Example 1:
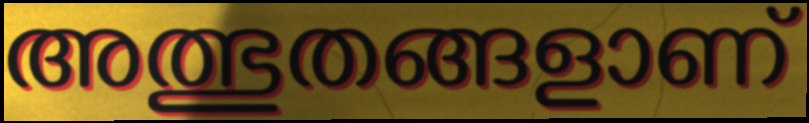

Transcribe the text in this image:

അത്ഭുതങ്ങളാണ്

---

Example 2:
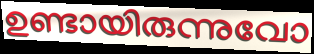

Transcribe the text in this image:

ഉണ്ടായിരുന്നുവോ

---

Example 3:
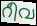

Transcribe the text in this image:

റീവ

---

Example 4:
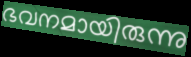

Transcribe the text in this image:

ഭവനമായിരുന്നു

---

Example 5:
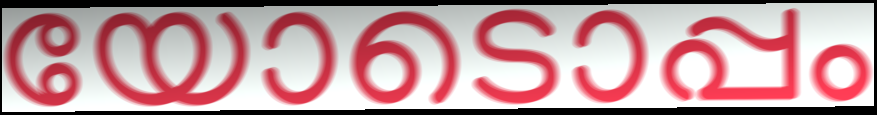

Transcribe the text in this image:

യോടൊപ്പം